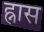
ह्नास